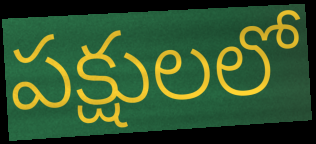
పక్షులలో